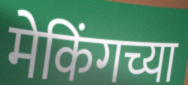
मेकिंगच्या